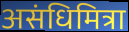
असंधिमित्रा